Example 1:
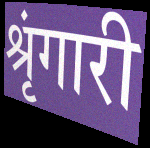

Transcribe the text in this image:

श्रृंगारी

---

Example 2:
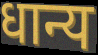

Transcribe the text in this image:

धान्य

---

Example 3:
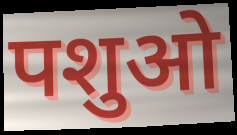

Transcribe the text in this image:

पशुओ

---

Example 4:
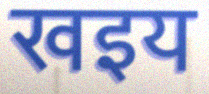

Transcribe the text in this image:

खइय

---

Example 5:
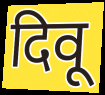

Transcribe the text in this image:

दिवू